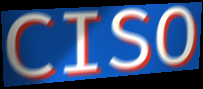
CISO